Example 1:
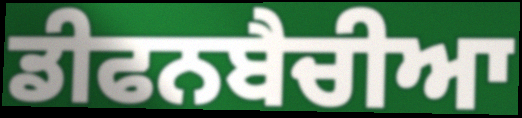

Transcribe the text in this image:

ਡੀਫਨਬੈਚੀਆ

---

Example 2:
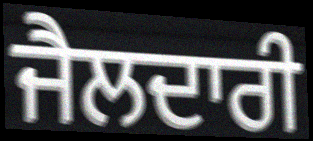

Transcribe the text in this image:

ਜੈਲਦਾਰੀ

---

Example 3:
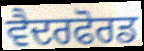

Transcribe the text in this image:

ਵੈਦਰਫੋਰਡ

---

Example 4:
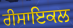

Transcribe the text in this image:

ਰੀਸਾਇਕਲ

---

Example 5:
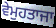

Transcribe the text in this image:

ਵੇਮੁਹਤਾਜਾ